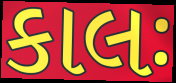
કાલઃ